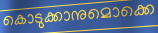
കൊടുക്കാനുമൊക്കെ